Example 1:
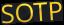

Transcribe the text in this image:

SOTP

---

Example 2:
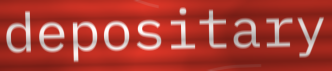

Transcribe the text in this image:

depositary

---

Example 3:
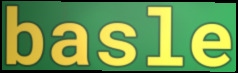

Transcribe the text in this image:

basle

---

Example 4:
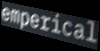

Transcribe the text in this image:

emperical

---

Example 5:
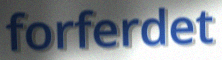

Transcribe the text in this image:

forferdet